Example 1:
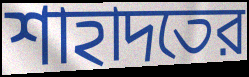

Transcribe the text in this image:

শাহাদতের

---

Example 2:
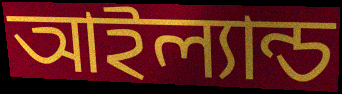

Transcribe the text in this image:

আইল্যান্ড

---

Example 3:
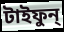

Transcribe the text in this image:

টাইফুন্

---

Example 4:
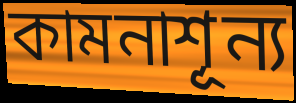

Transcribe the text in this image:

কামনাশূন্য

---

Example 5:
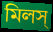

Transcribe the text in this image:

মিলস্